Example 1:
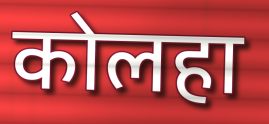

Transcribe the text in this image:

कोलहा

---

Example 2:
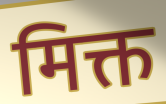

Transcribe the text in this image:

मिक्त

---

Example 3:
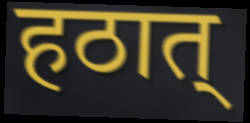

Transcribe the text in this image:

हठात्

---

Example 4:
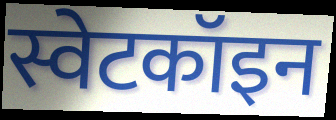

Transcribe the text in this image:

स्वेटकॉइन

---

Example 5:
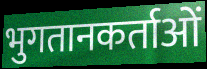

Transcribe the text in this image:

भुगतानकर्ताओं